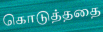
கொடுத்ததை